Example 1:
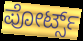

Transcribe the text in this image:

ಪೋರ್ಟ್ಸ್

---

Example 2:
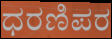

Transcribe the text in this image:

ಧರಣಿಪರ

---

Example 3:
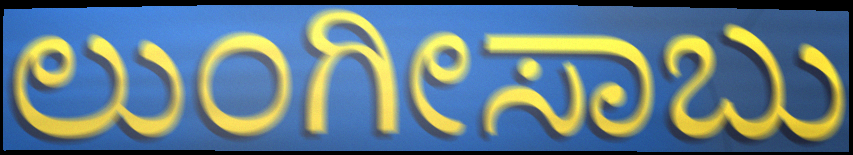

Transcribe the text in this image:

ಲುಂಗೀಸಾಬು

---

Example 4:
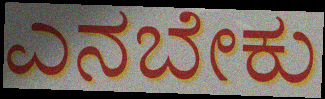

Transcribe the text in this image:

ಎನಬೇಕು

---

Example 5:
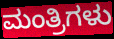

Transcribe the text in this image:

ಮಂತ್ರಿಗಳು